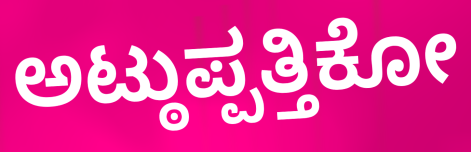
ಅಟ್ಠುಪ್ಪತ್ತಿಕೋ